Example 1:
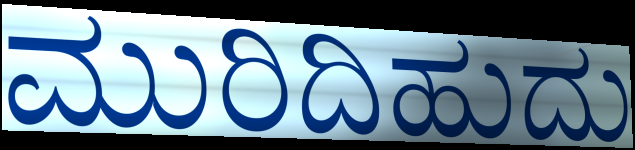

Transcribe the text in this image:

ಮುರಿದಿಹುದು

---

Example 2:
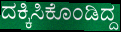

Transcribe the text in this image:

ದಕ್ಕಿಸಿಕೊಂಡಿದ್ದ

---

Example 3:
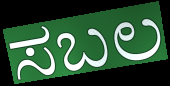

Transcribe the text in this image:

ಸಬಲ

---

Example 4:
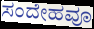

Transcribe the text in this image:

ಸಂದೇಹವೂ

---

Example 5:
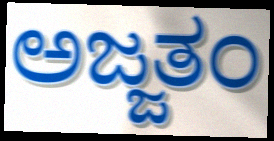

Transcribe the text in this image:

ಅಜ್ಜತಂ